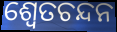
ଶ୍ୱେତଚନ୍ଦନ